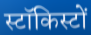
स्टॉकिस्टों